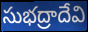
సుభద్రాదేవి